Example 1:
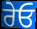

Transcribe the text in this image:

ਰੇਓ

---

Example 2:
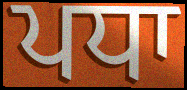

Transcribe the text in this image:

ਪਧਾ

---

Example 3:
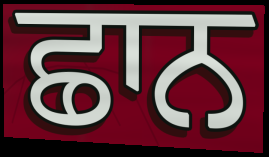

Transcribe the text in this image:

ਛਾਨ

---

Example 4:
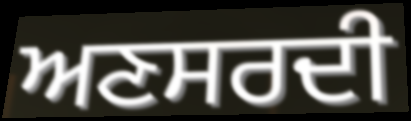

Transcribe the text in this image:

ਅਣਸਰਦੀ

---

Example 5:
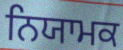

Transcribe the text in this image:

ਨਿਯਾਮਕ